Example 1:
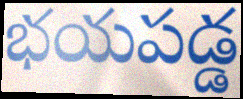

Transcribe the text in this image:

భయపడ్డ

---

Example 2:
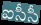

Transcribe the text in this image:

ఐసీసీ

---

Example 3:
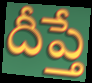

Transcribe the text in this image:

దీప్తే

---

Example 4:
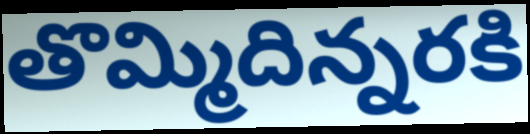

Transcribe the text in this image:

తొమ్మిదిన్నరకి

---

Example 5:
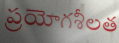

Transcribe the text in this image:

ప్రయోగశీలత